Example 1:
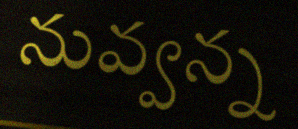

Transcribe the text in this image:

నువ్వన్న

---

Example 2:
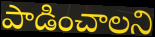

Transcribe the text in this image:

పాడించాలని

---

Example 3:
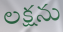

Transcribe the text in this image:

లక్షను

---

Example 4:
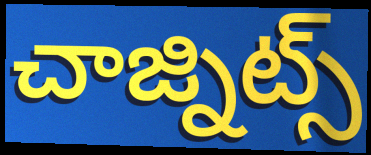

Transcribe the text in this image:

చాజ్నిట్స్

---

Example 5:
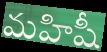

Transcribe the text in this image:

మహిషీ